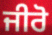
ਜੀਰੋ